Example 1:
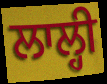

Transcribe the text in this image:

ਲਾਲ੍ਹੀ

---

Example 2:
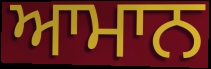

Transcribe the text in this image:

ਆਮਾਨ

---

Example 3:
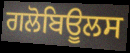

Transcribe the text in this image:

ਗਲੋਬਿਊਲਸ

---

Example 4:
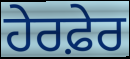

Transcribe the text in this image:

ਹੇਰਫ਼ੇਰ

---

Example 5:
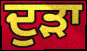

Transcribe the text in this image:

ਦੁੜਾ